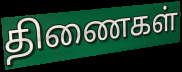
திணைகள்